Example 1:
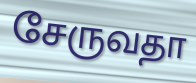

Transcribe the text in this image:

சேருவதா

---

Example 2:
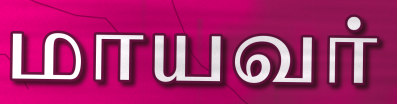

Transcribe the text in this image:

மாயவர்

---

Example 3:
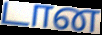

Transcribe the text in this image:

டான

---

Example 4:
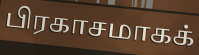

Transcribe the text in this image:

பிரகாசமாகக்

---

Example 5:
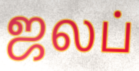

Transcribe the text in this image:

ஜலப்